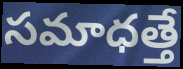
సమాధత్తే